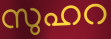
സുഹറ